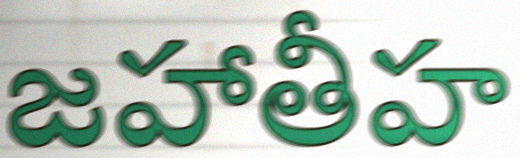
జహాతీహ